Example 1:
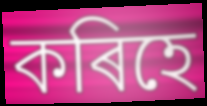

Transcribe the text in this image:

কৰিহে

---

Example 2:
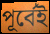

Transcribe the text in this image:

পূৰ্বেই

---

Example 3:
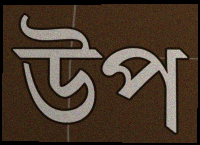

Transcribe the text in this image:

উপ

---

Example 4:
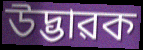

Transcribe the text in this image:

উদ্ভাৱক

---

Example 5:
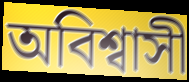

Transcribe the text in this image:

অবিশ্বাসী